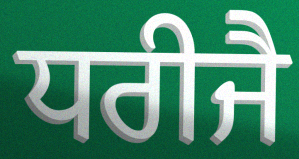
ਧਰੀਜੈ